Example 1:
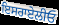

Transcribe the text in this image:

ਇਸਰਾਏਲੀਓ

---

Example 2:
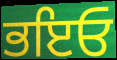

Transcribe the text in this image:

ਭਇਓ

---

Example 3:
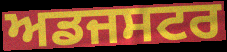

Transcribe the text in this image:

ਅਡਜਸਟਰ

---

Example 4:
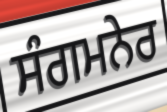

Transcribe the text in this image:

ਸੰਗਮਨੇਰ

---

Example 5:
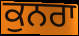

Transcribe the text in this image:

ਕੁਨਰਾ